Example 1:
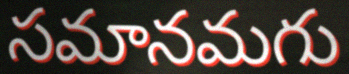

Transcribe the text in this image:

సమానమగు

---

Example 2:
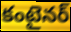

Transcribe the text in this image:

కంటైనర్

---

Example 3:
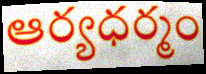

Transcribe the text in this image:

ఆర్యధర్మం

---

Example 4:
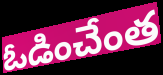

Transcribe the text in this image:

ఓడించేంత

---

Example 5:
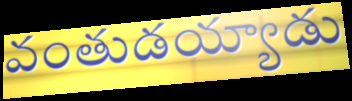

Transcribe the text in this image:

వంతుడయ్యాడు